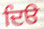
ਦਿੳ